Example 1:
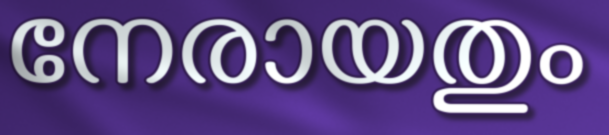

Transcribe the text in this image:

നേരായതും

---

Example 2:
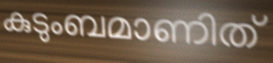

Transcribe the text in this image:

കുടുംബമാണിത്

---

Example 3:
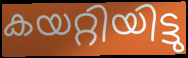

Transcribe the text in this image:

കയറ്റിയിട്ടു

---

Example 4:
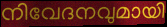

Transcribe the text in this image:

നിവേദനവുമായി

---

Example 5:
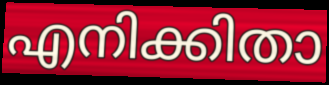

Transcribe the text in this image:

എനിക്കിതാ